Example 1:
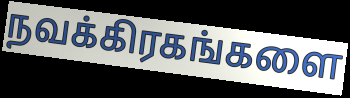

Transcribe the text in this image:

நவக்கிரகங்களை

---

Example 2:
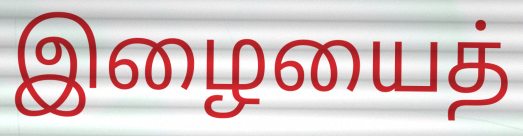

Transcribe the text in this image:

இழையைத்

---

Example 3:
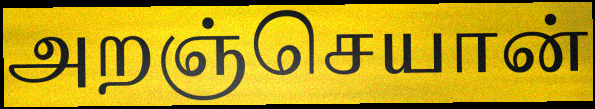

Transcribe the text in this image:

அறஞ்செயான்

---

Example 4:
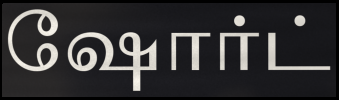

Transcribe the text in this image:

ஷோர்ட்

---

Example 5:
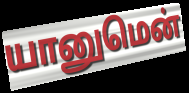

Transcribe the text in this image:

யானுமென்